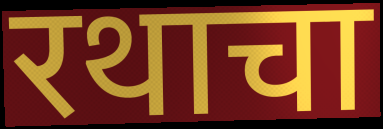
रथाचा